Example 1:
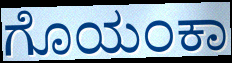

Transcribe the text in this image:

ಗೊಯಂಕಾ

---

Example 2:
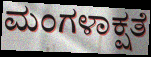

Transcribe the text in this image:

ಮಂಗಳಾಕ್ಷತೆ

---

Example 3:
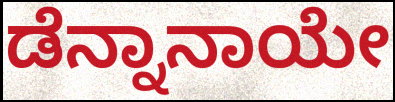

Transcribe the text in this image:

ಡೆನ್ನಾನಾಯೇ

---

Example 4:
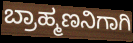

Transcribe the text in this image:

ಬ್ರಾಹ್ಮಣನಿಗಾಗಿ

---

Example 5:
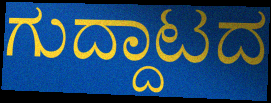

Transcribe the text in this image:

ಗುದ್ದಾಟದ